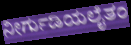
ನೀರ್ಗುಡಿಯಲೈತಂ